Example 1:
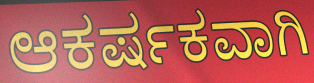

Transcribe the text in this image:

ಆಕರ್ಷಕವಾಗಿ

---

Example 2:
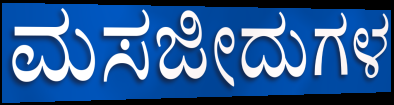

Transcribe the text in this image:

ಮಸಜೀದುಗಳ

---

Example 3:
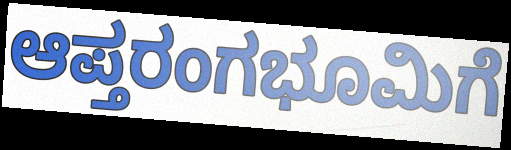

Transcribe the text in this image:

ಆಪ್ತರಂಗಭೂಮಿಗೆ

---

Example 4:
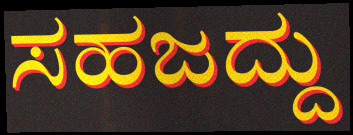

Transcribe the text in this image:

ಸಹಜದ್ದು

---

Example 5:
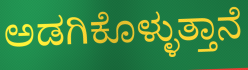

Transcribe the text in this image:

ಅಡಗಿಕೊಳ್ಳುತ್ತಾನೆ